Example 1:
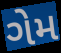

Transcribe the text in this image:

ગેમ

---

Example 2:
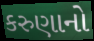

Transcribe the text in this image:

કરુણાનો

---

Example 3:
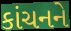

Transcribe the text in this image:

કાંચનને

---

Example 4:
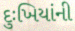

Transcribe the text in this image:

દુઃખિયાંની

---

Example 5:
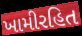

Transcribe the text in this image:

ખામીરહિત